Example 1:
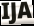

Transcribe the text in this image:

IJA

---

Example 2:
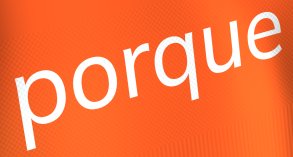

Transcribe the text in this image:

porque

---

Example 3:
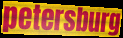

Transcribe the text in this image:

petersburg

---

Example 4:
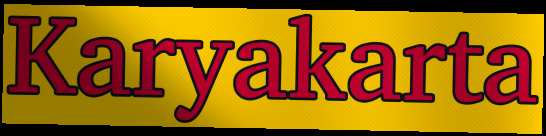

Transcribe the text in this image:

Karyakarta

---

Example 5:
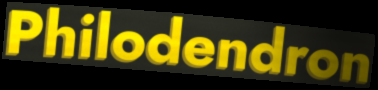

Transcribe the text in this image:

Philodendron